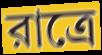
রাত্রে